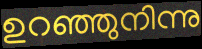
ഉറഞ്ഞുനിന്നു